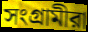
সংগ্রামীরা